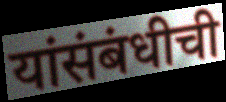
यांसंबंधीची